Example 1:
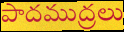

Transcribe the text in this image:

పాదముద్రలు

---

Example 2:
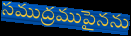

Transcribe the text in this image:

సముద్రముపైనను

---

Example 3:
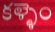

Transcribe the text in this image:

కళ్ళెం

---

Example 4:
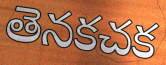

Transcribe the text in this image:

తెనకచక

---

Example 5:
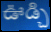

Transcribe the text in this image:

ఊడ్చి